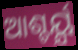
ଆଶ୍ଚର୍ୟ୍ଯ